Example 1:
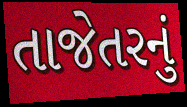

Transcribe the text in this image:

તાજેતરનું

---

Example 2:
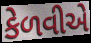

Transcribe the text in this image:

કેળવીએ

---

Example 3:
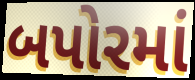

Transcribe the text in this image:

બપોરમાં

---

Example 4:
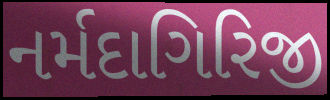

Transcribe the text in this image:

નર્મદાગિરિજી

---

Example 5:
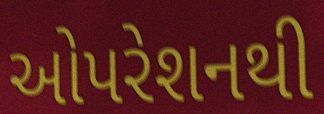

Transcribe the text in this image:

ઓપરેશનથી